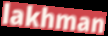
lakhman